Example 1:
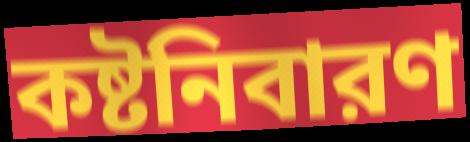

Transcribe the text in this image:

কষ্টনিবারণ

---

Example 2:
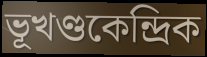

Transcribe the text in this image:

ভূখণ্ডকেন্দ্রিক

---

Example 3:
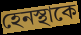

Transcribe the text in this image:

হেনস্থাকে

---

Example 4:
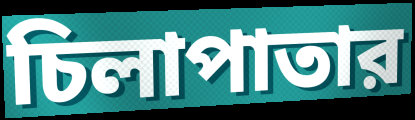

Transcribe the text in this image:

চিলাপাতার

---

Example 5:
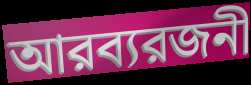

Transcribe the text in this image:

আরব্যরজনী